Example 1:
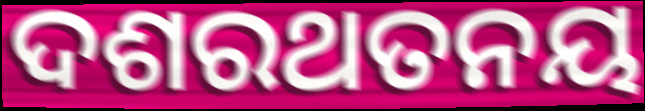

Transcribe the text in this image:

ଦଶରଥତନୟ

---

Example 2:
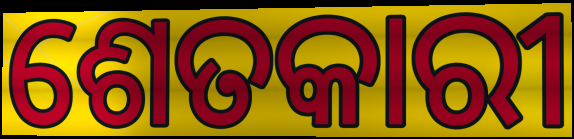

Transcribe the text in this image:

ଶେତକାରୀ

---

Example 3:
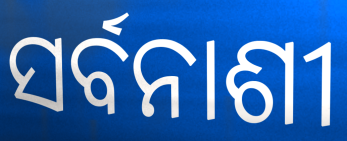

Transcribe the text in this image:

ସର୍ବନାଶୀ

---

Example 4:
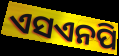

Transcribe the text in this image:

ଏସଏନପି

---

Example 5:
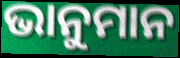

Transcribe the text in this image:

ଭାନୁମାନ